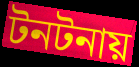
টনটনায়